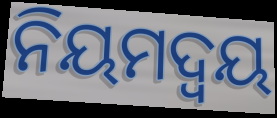
ନିୟମଦ୍ୱୟ